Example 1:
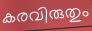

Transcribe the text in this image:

കരവിരുതും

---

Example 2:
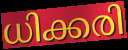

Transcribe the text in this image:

ധിക്കരി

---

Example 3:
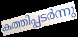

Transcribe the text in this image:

കത്തിപ്പടർന്നു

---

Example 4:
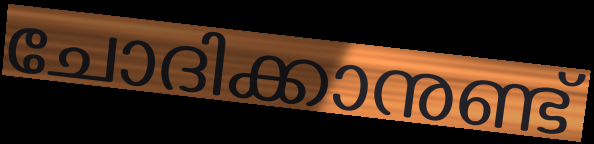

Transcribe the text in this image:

ചോദിക്കാനുണ്ട്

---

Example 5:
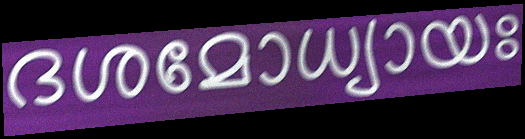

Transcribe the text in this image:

ദശമോധ്യായഃ